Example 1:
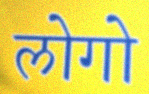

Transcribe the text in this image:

लोगो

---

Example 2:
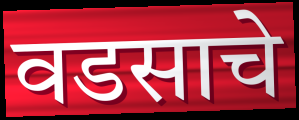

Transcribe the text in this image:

वडसाचे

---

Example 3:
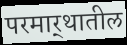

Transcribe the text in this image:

परमार्थातील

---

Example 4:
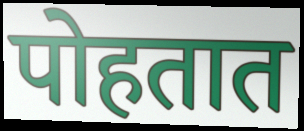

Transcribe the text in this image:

पोहतात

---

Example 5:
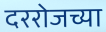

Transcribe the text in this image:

दररोजच्या